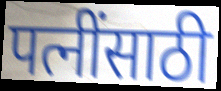
पत्नींसाठी